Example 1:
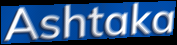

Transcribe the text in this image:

Ashtaka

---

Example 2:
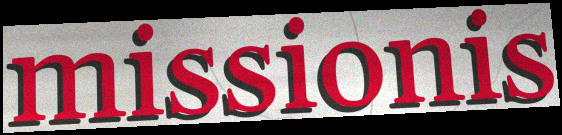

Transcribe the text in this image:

missionis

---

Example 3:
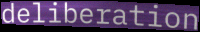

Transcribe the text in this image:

deliberation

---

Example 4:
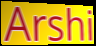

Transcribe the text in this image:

Arshi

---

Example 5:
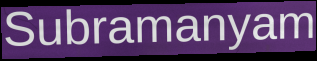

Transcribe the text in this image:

Subramanyam